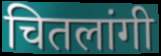
चितलांगी